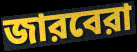
জারবেরা